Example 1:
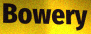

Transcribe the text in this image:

Bowery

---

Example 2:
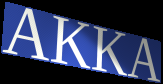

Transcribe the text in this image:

AKKA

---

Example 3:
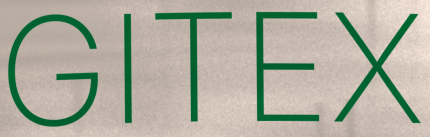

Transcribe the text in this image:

GITEX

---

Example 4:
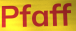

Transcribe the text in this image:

Pfaff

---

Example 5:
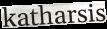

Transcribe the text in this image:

katharsis